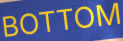
BOTTOM